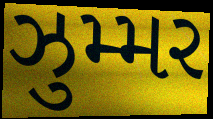
ઝુમ્મર